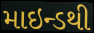
માઇન્ડથી